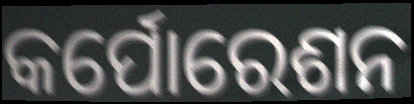
କର୍ପୋରେଶନ